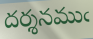
దర్శనముఁ